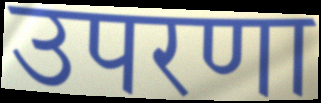
उपरणा